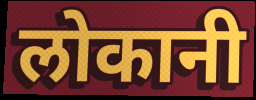
लोकानी